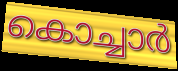
കൊച്ചാർ